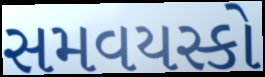
સમવયસ્કો